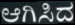
ಆಗಿಸಿದ